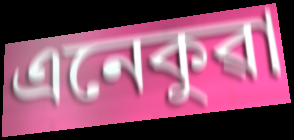
এনেকুৱা